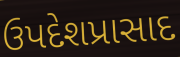
ઉપદેશપ્રાસાદ